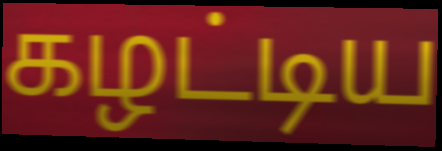
கழட்டிய